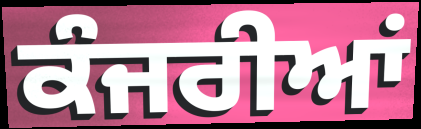
ਕੰਜਰੀਆਂ